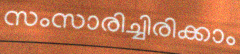
സംസാരിച്ചിരിക്കാം